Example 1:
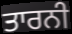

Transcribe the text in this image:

ਤਾਰਨੀ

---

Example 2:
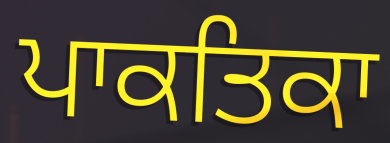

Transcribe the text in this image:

ਪਾਕਤਿਕਾ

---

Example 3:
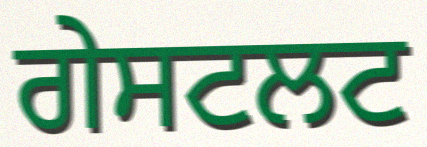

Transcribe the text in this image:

ਗੇਸਟਲਟ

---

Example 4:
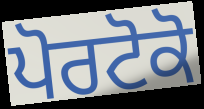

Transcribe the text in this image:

ਪੋਰਟੋਕੋ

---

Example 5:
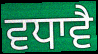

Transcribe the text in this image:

ਵਧਾਵੈ